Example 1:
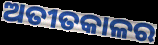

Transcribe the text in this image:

ଅତୀତକାଳର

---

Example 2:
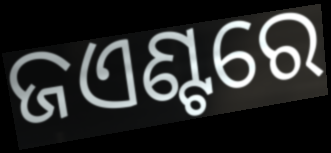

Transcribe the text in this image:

ଜଏଣ୍ଟରେ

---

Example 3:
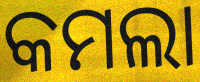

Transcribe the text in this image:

କମଲା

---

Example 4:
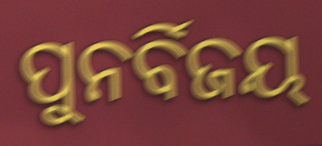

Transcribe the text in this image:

ପୁନର୍ବିଜୟ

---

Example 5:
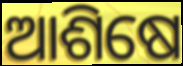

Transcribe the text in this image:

ଆଶିଷେ